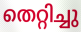
തെറ്റിച്ചു